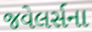
જવેલર્સના